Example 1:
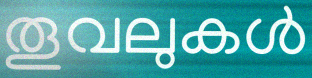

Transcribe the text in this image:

തൂവലുകൾ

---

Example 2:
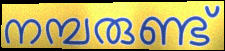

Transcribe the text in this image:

നമ്പരുണ്ട്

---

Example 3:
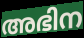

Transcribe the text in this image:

അഭിന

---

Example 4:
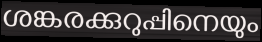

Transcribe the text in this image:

ശങ്കരക്കുറുപ്പിനെയും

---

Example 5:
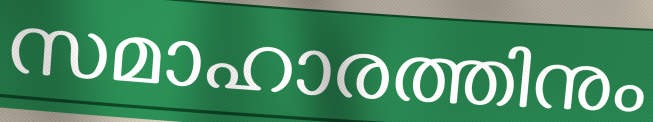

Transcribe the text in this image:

സമാഹാരത്തിനും